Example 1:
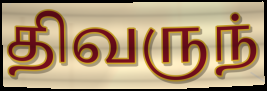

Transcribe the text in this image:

திவருந்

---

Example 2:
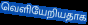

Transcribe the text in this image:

வெளியேறியதாக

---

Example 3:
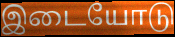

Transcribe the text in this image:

இடையோடு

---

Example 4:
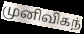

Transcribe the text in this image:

முனிவிகந்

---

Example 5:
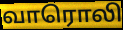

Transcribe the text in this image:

வாரொலி